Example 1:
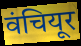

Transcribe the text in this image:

वंचियूर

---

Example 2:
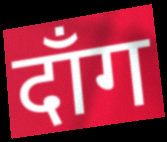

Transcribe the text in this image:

दाँग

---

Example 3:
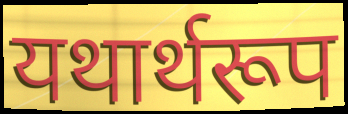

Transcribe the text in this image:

यथार्थरूप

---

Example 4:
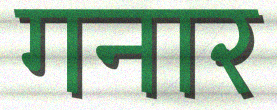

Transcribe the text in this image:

गनार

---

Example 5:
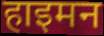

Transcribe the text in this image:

हाइमन